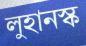
লুহানস্ক